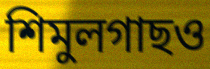
শিমুলগাছও